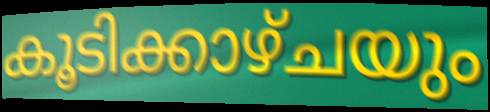
കൂടിക്കാഴ്ചയും